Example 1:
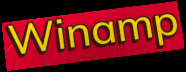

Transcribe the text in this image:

Winamp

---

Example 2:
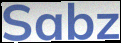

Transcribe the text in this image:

Sabz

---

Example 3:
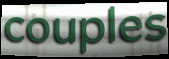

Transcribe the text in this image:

couples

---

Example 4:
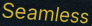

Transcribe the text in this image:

Seamless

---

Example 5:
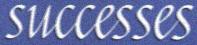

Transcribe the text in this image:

successes